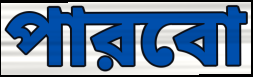
পারবো